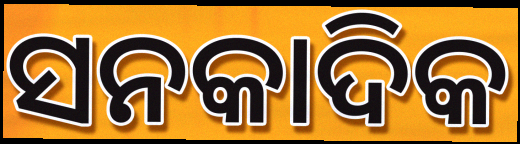
ସନକାଦିକ